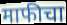
माफीचा